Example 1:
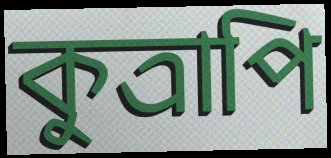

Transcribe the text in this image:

কুত্রাপি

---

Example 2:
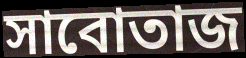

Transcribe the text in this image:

সাবোতাজ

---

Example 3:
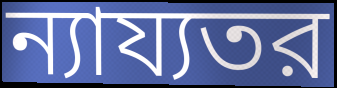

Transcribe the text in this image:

ন্যায্যতর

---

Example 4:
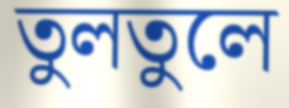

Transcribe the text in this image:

তুলতুলে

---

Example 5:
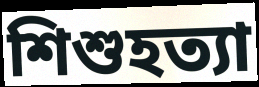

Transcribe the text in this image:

শিশুহত্যা